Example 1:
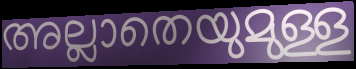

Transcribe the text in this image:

അല്ലാതെയുമുള്ള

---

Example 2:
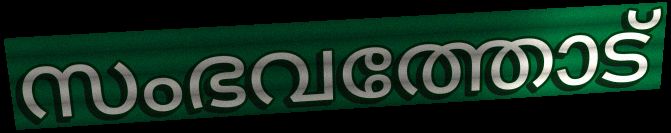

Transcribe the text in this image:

സംഭവത്തോട്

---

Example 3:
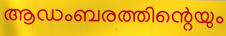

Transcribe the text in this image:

ആഡംബരത്തിന്റെയും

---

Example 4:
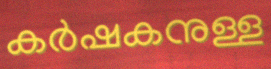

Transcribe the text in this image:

കർഷകനുള്ള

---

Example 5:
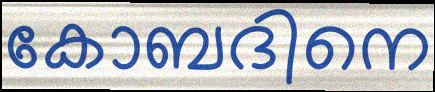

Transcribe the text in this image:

കോബദിനെ